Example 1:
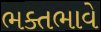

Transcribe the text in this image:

ભક્તભાવે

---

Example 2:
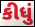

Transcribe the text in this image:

કીધું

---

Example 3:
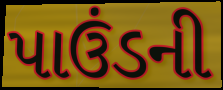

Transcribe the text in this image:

પાઉંડની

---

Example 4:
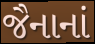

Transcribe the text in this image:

જૈનાનાં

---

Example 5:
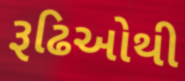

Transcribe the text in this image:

રૂઢિઓથી